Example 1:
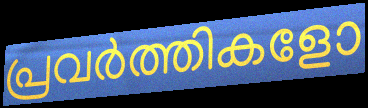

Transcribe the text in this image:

പ്രവർത്തികളോ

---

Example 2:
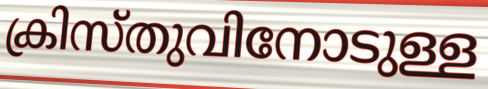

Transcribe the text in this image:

ക്രിസ്തുവിനോടുള്ള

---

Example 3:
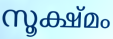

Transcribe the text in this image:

സൂക്ഷ്‌മം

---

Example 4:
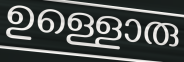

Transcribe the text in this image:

ഉള്ളൊരു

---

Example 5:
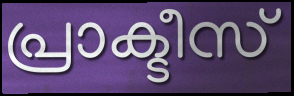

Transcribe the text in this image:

പ്രാക്ടീസ്